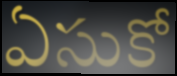
ఏసుకో